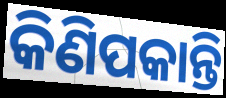
କିଣିପକାନ୍ତି